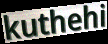
kuthehi